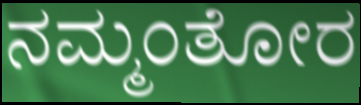
ನಮ್ಮಂತೋರ